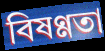
বিষণ্ণতা